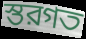
স্তরগত